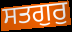
ਸਤਗੁਰੁ